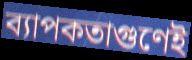
ব্যাপকতাগুণেই